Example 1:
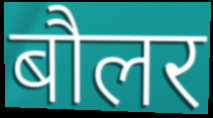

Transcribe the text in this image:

बौलर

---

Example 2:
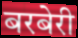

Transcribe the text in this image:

बरबेरी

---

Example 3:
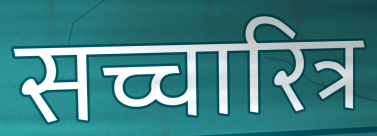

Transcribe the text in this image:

सच्चारित्र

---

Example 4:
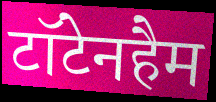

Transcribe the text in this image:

टॉटेनहैम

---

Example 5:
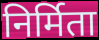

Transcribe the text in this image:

निर्मिता